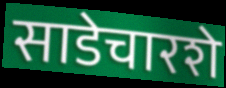
साडेचारशे